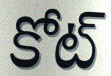
కోట్